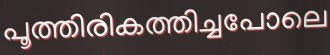
പൂത്തിരികത്തിച്ചപോലെ